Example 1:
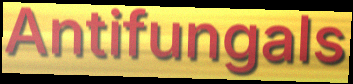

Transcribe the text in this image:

Antifungals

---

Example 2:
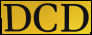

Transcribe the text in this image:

DCD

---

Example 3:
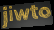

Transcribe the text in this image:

jiwto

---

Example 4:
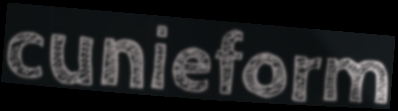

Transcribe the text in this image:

cunieform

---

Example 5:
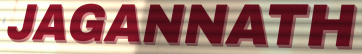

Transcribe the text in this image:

JAGANNATH